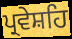
ਪ੍ਰਵੇਸ਼ਹਿ